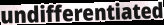
undifferentiated